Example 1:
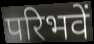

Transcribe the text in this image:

परिभवें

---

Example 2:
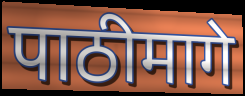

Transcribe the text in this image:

पाठीमागे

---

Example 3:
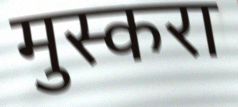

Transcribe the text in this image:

मुस्करा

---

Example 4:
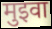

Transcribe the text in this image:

मुइवा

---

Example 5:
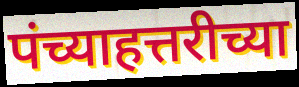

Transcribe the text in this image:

पंच्याहत्तरीच्या